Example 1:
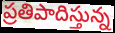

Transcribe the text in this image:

ప్రతిపాదిస్తున్న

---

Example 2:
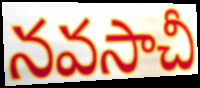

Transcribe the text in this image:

నవసాచీ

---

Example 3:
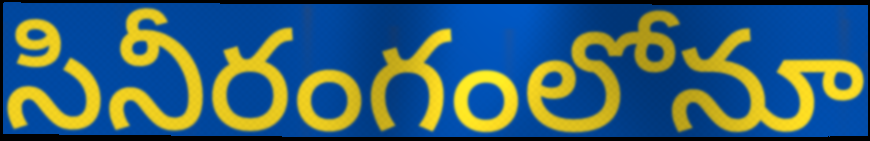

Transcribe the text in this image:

సినీరంగంలోనూ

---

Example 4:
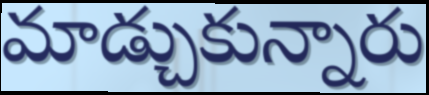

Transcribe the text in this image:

మాడ్చుకున్నారు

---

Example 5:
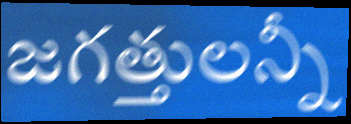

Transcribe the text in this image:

జగత్తులన్నీ